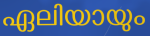
ഏലിയായും